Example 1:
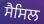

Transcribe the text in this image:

ਸੈਸਿਲ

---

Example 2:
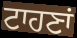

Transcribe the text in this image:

ਟਾਹਣਾਂ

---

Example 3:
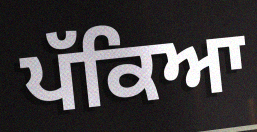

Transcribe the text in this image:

ਪੱਕਿਆ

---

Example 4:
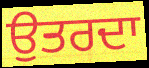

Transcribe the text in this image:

ਉਤਰਦਾ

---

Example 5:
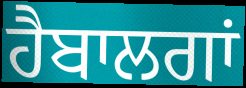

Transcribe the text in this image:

ਹੈਬਾਲਗਾਂ